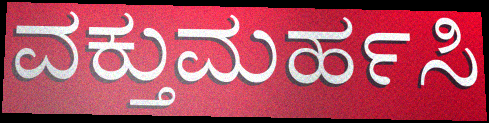
ವಕ್ತುಮರ್ಹಸಿ